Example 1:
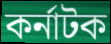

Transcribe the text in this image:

কর্নাটক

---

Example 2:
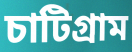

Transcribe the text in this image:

চাটিগ্রাম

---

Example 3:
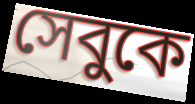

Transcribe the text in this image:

সেবুকে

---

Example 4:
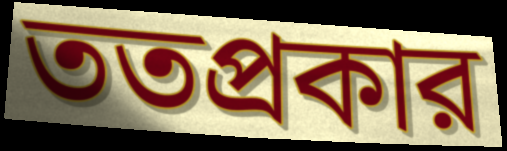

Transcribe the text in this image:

ততপ্রকার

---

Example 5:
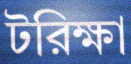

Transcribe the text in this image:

টরিক্ষা